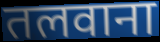
तलवाना